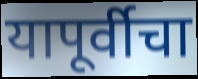
यापूर्वीचा